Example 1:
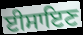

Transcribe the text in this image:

ਈਸਾਇਣ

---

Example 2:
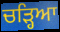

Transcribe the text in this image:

ਚੜ੍ਹਿਆ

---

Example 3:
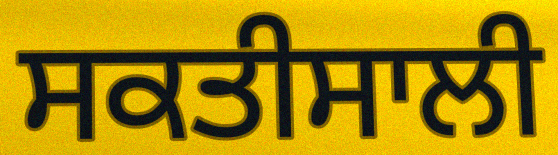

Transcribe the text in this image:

ਸਕਤੀਸਾਲੀ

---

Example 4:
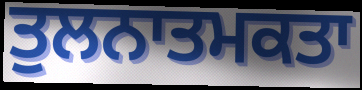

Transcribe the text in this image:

ਤੁਲਨਾਤਮਕਤਾ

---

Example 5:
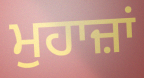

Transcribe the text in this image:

ਮੁਹਾਜ਼ਾਂ